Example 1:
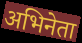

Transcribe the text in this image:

अभिनेता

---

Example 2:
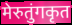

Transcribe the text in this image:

मेरुतुंगकृत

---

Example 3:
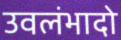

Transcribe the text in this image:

उवलंभादो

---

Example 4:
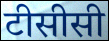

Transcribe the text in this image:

टीसीसी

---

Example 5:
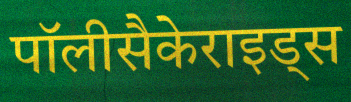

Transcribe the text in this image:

पॉलीसैकेराइड्स